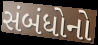
સંબંધોનો